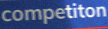
competiton